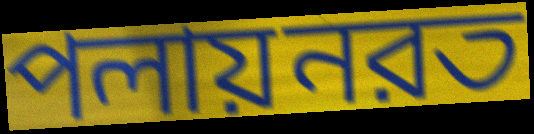
পলায়নরত